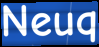
Neuq